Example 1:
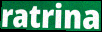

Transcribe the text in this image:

ratrina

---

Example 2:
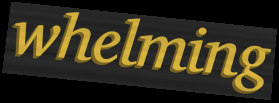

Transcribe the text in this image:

whelming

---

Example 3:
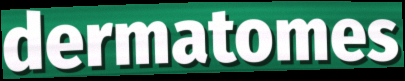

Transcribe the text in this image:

dermatomes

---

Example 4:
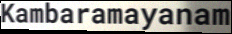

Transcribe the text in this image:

Kambaramayanam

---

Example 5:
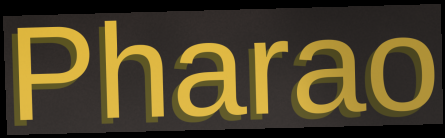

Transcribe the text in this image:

Pharao